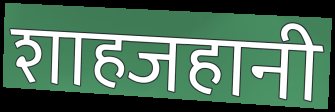
शाहजहानी